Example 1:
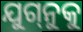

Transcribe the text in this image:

ଯୁଗ୍‌ନୁକୁ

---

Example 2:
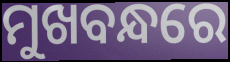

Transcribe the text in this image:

ମୁଖବନ୍ଧରେ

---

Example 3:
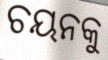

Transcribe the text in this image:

ଚୟନକୁ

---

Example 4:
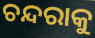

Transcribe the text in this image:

ଚନ୍ଦରାକୁ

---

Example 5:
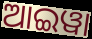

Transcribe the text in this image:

ଆଇୱା